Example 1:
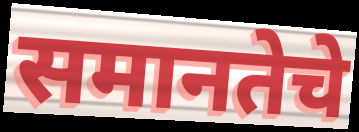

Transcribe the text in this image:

समानतेचे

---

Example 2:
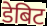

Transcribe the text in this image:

डेबिट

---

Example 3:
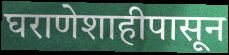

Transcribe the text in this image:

घराणेशाहीपासून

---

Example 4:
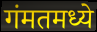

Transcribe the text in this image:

गंमतमध्ये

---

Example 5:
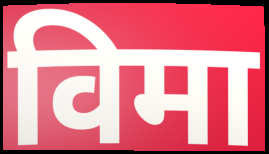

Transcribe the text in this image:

विमा